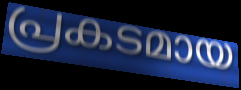
പ്രകടമായ